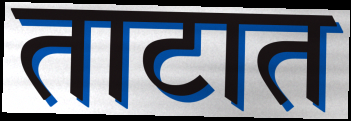
ताटात